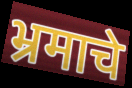
भ्रमाचे